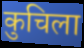
कुचिला